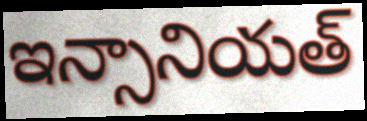
ఇన్సానియత్